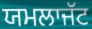
ਯਮਲਾਜੱਟ